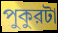
পুকুরটা